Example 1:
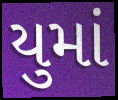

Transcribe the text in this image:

યુમાં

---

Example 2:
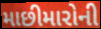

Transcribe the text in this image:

માછીમારોની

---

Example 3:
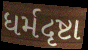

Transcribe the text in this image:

ધર્મદૃષ્ટા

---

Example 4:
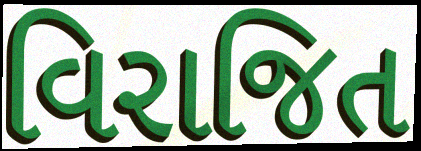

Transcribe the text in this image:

વિરાજિત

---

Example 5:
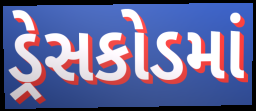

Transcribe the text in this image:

ડ્રેસકોડમાં